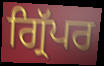
ਗ੍ਰਿੱਪਰ